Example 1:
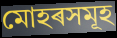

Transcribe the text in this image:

মোহৰসমূহ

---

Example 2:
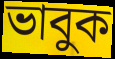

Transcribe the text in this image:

ভাবুক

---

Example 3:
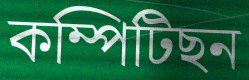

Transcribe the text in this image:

কম্পিটিছন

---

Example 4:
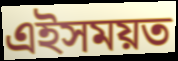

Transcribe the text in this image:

এইসময়ত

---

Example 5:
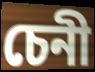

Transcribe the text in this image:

চেনী